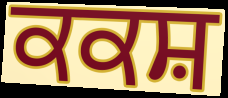
ਕਕਸ਼